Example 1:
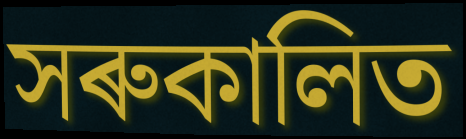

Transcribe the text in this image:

সৰুকালিত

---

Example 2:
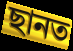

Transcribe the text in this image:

ছানত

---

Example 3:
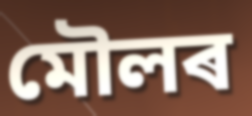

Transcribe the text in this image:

মৌলৰ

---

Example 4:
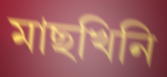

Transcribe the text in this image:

মাছখিনি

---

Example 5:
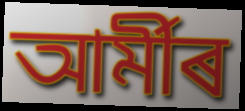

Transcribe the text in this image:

আৰ্মীৰ